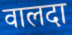
वालदा